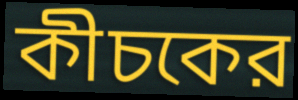
কীচকের